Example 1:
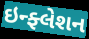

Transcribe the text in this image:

ઇન્ફ્લેશન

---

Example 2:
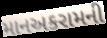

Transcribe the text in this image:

માનઅકરામની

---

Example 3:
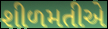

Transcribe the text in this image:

શીળમતીએ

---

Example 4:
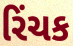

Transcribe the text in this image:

રિંચક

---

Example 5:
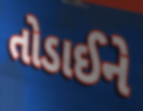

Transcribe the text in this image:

તોડાઈને